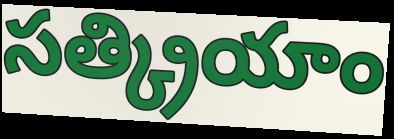
సత్క్రియాం